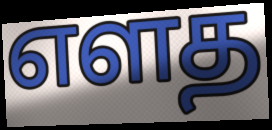
எளத